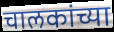
चालकांच्या